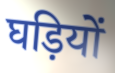
घड़ियों